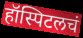
हॉस्पिटलचं